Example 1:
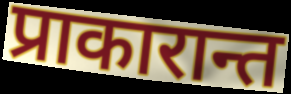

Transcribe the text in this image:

प्राकारान्त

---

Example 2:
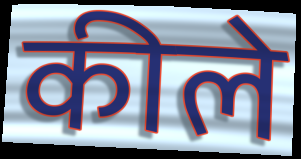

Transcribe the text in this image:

कीले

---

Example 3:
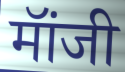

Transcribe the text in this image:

मॉंजी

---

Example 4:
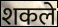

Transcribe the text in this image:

शकले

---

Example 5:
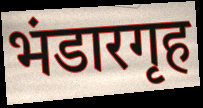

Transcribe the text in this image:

भंडारगृह